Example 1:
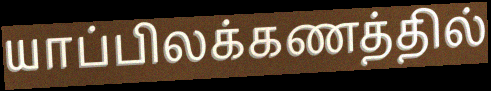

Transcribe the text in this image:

யாப்பிலக்கணத்தில்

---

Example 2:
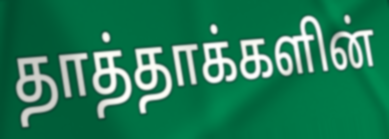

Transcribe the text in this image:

தாத்தாக்களின்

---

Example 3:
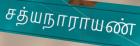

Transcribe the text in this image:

சத்யநாராயண்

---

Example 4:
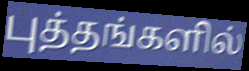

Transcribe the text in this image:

புத்தங்களில்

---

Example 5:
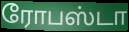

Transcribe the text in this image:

ரோபஸ்டா